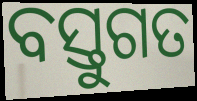
ବସ୍ତୁଗତ